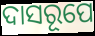
ଦାସରୂପେ